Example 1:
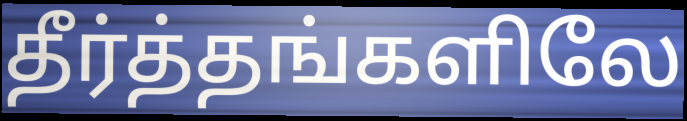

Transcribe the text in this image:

தீர்த்தங்களிலே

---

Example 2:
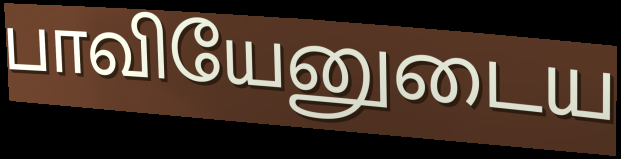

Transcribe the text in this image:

பாவியேனுடைய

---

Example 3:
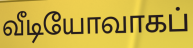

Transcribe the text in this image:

வீடியோவாகப்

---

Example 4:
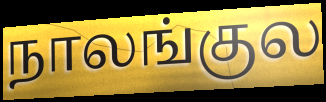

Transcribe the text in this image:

நாலங்குல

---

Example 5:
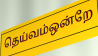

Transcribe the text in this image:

தெய்வம்ஒன்றே